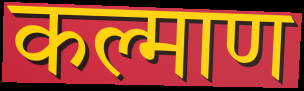
कल्माण